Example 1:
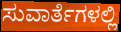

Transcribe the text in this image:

ಸುವಾರ್ತೆಗಳಲ್ಲಿ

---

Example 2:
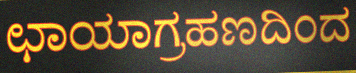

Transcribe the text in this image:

ಛಾಯಾಗ್ರಹಣದಿಂದ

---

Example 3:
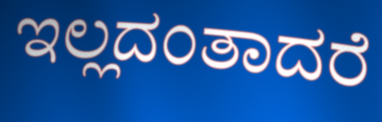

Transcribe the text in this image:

ಇಲ್ಲದಂತಾದರೆ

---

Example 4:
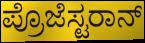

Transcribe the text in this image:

ಪ್ರೊಜೆಸ್ಟರಾನ್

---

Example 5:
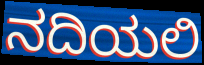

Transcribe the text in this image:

ನದಿಯಲಿ